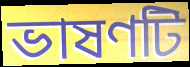
ভাষণটি